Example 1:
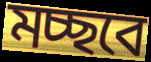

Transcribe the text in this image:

মচ্ছবে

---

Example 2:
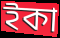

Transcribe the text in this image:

ইকা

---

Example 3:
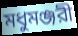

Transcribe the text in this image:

মধুমঞ্জরী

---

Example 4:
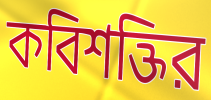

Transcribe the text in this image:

কবিশক্তির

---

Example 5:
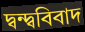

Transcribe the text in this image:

দ্বন্দ্ববিবাদ